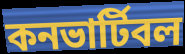
কনভার্টিবল